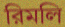
রিমলি